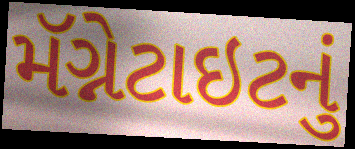
મૅગ્નેટાઇટનું